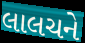
લાલચને